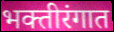
भक्तीरंगात